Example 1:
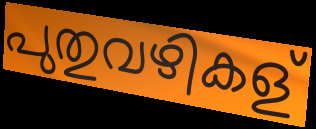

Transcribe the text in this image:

പുതുവഴികള്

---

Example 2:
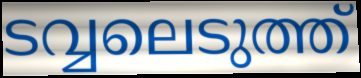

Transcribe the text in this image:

ടവ്വലെടുത്ത്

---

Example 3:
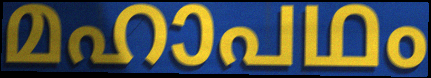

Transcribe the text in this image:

മഹാപഥം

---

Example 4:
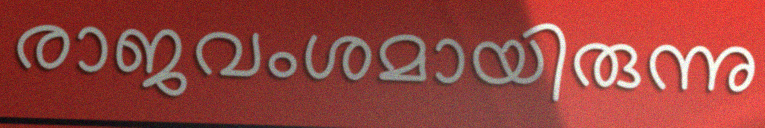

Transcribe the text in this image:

രാജവംശമായിരുന്നു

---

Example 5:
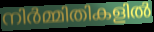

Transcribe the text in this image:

നിർമ്മിതികളിൽ